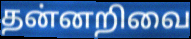
தன்னறிவை